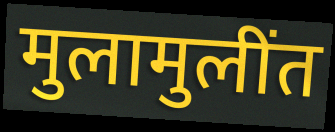
मुलामुलींत